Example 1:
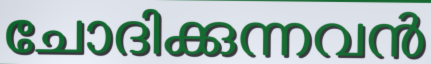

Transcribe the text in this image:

ചോദിക്കുന്നവൻ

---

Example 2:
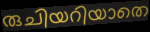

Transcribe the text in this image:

രുചിയറിയാതെ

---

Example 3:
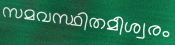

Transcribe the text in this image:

സമവസ്ഥിതമീശ്വരം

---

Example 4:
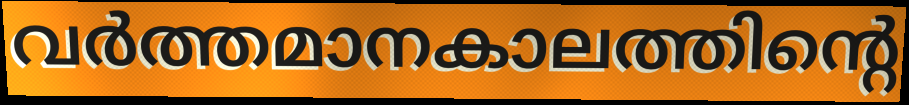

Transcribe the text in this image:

വർത്തമാനകാലത്തിന്റെ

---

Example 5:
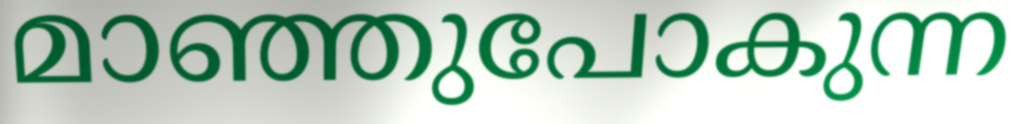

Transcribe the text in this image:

മാഞ്ഞുപോകുന്ന